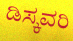
ಡಿಸ್ಕವರಿ